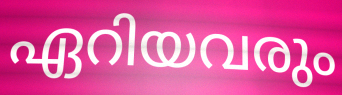
ഏറിയവരും